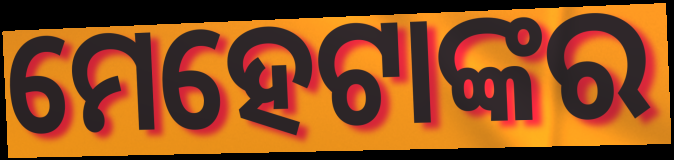
ମେହେଟାଙ୍କର